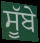
ਸੂੱਬੇ